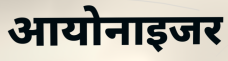
आयोनाइजर